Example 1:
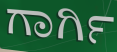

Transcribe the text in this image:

ಗಾರ್ಗಿ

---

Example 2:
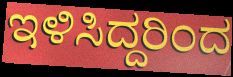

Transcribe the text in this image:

ಇಳಿಸಿದ್ದರಿಂದ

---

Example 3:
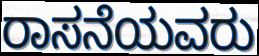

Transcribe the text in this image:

ರಾಸನೆಯವರು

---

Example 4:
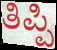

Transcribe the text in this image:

ತಿಪ್ಪಿ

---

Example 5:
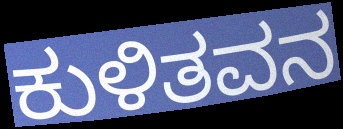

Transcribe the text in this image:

ಕುಳಿತವನ